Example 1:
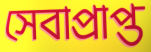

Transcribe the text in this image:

সেবাপ্রাপ্ত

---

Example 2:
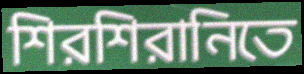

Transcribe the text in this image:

শিরশিরানিতে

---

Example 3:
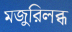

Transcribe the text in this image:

মজুরিলব্ধ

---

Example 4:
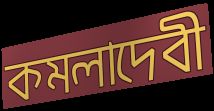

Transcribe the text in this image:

কমলাদেবী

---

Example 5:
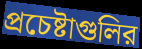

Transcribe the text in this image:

প্রচেষ্টাগুলির